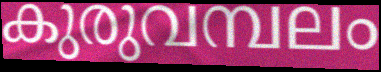
കുരുവമ്പലം